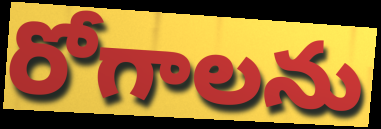
రోగాలను